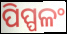
ପିପ୍ପଳଂ